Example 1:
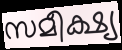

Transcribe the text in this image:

സമീക്ഷ്യ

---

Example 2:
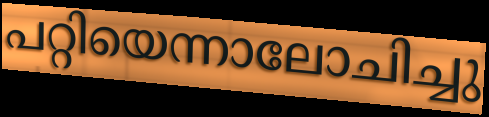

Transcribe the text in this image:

പറ്റിയെന്നാലോചിച്ചു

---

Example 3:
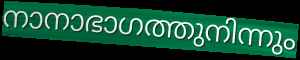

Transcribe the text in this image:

നാനാഭാഗത്തുനിന്നും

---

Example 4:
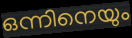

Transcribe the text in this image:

ഒന്നിനെയും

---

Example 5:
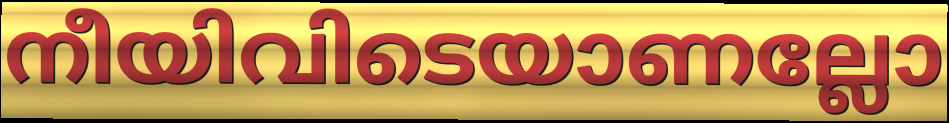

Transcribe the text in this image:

നീയിവിടെയാണല്ലോ